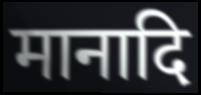
मानादि